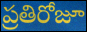
ప్రతిరోజూ